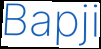
Bapji